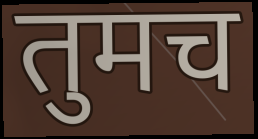
तुमच